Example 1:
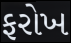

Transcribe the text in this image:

ફરોખ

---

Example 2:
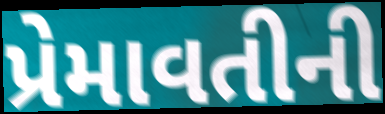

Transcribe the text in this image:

પ્રેમાવતીની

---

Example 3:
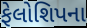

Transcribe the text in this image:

ફેલોશિપના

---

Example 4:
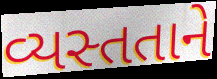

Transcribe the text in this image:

વ્યસ્તતાને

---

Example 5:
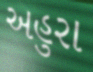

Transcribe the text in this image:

અહુરા